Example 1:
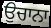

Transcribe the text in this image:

ਉਚਾਨਾ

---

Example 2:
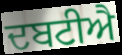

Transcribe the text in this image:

ਦਬਟੀਐ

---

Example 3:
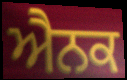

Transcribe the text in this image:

ਐਨਕ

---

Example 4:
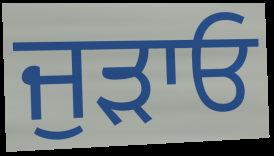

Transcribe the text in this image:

ਜੁੜਾਓ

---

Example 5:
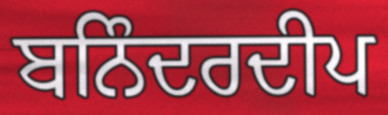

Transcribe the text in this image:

ਬਨਿੰਦਰਦੀਪ